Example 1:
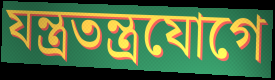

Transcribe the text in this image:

যন্ত্রতন্ত্রযোগে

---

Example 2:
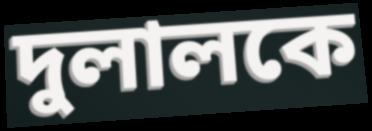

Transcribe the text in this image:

দুলালকে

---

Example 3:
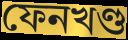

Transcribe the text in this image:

ফেনখণ্ড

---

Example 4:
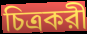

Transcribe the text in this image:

চিত্রকরী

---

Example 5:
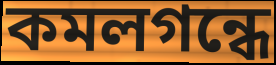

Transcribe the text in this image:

কমলগন্ধে